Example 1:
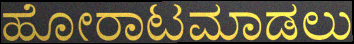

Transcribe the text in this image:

ಹೋರಾಟಮಾಡಲು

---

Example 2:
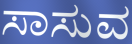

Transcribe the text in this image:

ಸಾಸುವ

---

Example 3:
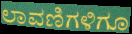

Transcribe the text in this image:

ಲಾವಣಿಗಳಿಗೂ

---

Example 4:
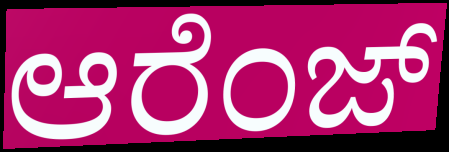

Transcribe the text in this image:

ಆರೆಂಜ್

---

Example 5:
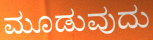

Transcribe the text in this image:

ಮೂಡುವುದು